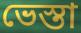
ভেস্তা